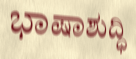
ಭಾಷಾಶುದ್ಧಿ